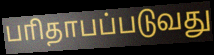
பரிதாபப்படுவது